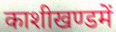
काशीखण्डमें